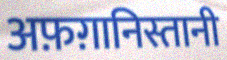
अफ़ग़ानिस्तानी